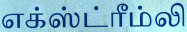
எக்ஸ்ட்ரீம்லி